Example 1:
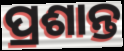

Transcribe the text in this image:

ପ୍ରଶାନ୍ତ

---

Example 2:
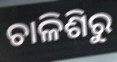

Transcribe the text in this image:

ଚାଳିଶିରୁ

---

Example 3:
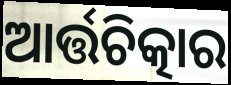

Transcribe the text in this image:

ଆର୍ତ୍ତଚିତ୍କାର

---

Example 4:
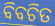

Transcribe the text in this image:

ବିବଚିତ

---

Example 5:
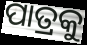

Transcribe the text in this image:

ପାତ୍ରକୁ